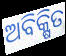
ଅବିକ୍ଷିତ